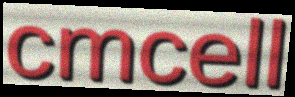
cmcell